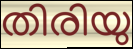
തിരിയു